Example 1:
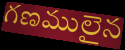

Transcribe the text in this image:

గణములైన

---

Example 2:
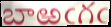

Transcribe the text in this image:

బాఱఁగఁ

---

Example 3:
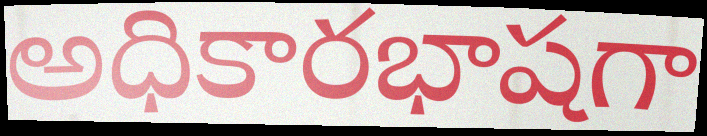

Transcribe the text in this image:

అధికారభాషగా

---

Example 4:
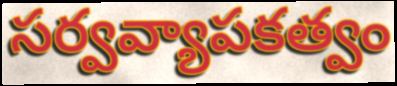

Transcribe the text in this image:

సర్వవ్యాపకత్వం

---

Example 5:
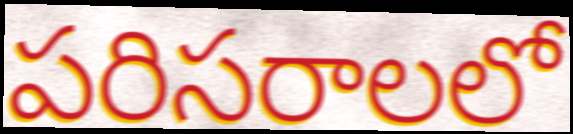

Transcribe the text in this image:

పరిసరాలలో